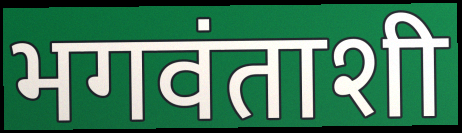
भगवंताशी